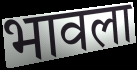
भावला